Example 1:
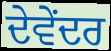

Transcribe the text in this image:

ਦੇਵੇਂਦਰ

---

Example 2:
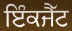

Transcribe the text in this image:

ਇੰਕਜੈੱਟ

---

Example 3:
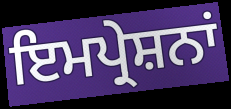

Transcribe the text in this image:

ਇਮਪ੍ਰੇਸ਼ਨਾਂ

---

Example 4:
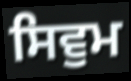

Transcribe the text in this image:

ਸਿਵੁਮ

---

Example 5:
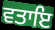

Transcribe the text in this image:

ਵਤਾਇ